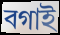
বগাই